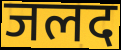
जलद